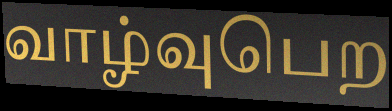
வாழ்வுபெற